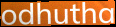
odhutha